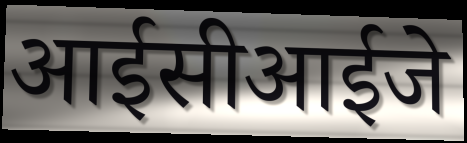
आईसीआईजे